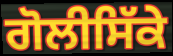
ਗੋਲੀਸਿੱਕੇ